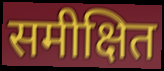
समीक्षित